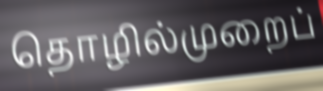
தொழில்முறைப்